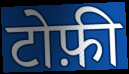
टोफ़ी